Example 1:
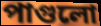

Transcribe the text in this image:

পাগুলো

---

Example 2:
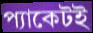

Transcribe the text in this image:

প্যাকেটই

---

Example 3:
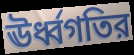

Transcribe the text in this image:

ঊর্ধ্বগতির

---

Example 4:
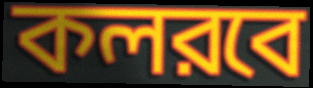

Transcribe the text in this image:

কলরবে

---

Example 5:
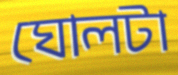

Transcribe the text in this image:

ঘোলটা